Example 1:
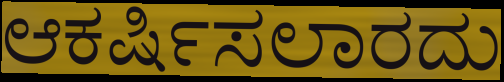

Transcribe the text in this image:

ಆಕರ್ಷಿಸಲಾರದು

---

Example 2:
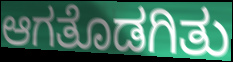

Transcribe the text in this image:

ಆಗತೊಡಗಿತು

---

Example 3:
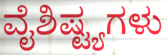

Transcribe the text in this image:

ವೈಶಿಷ್ಟ್ಯಗಳು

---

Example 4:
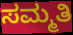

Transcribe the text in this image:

ಸಮ್ಮತಿ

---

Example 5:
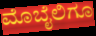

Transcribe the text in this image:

ಮೊಬೈಲಿಗೂ